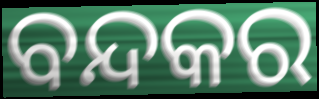
ବନ୍ଦକର